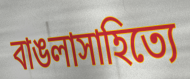
বাঙলাসাহিত্যে